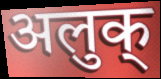
अलुक्